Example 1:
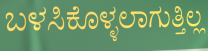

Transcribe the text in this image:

ಬಳಸಿಕೊಳ್ಳಲಾಗುತ್ತಿಲ್ಲ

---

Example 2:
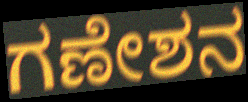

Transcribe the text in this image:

ಗಣೇಶನ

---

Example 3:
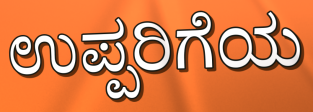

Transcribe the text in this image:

ಉಪ್ಪರಿಗೆಯ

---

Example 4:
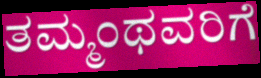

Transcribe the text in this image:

ತಮ್ಮಂಥವರಿಗೆ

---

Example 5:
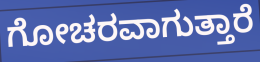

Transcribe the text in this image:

ಗೋಚರವಾಗುತ್ತಾರೆ